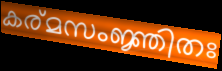
കര്മസംജ്ഞിതഃ